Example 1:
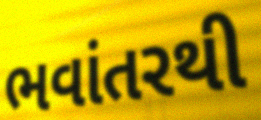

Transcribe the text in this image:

ભવાંતરથી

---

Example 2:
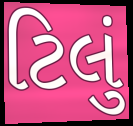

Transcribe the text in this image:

ટિલું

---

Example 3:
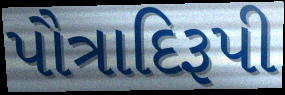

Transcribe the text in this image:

પૌત્રાદિરૂપી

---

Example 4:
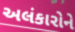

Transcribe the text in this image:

અલંકારોને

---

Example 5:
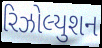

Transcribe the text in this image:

રિઝોલ્યુશન